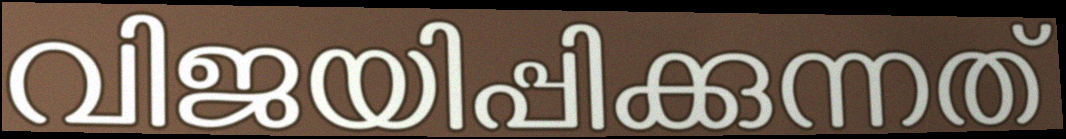
വിജയിപ്പിക്കുന്നത്